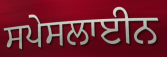
ਸਪੇਸਲਾਈਨ